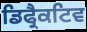
ਡਿਫ੍ਰੈਕਟਿਵ